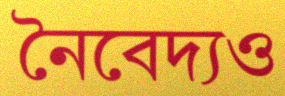
নৈবেদ্যও